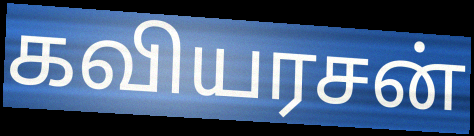
கவியரசன்